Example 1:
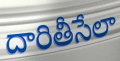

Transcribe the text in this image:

దారితీసేలా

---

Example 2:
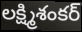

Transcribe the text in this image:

లక్ష్మిశంకర్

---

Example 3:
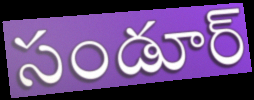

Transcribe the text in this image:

సండూర్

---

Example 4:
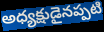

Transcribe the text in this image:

అధ్యక్షుడైనప్పటి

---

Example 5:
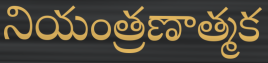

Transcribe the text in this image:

నియంత్రణాత్మక